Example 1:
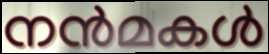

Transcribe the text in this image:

നൻമകൾ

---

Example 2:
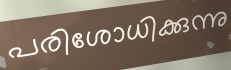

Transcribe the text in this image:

പരിശോധിക്കുന്നു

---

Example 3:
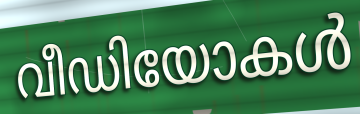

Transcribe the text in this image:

വീഡിയോകൾ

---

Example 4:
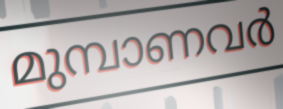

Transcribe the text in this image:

മുമ്പാണവർ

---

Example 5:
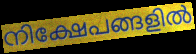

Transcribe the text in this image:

നിക്ഷേപങ്ങളിൽ